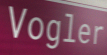
Vogler